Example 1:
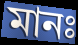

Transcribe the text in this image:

মানঃ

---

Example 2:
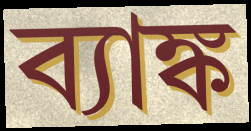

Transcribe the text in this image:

ব্যাঙ্ক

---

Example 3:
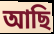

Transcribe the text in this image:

আছি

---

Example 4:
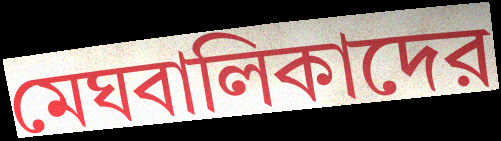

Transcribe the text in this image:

মেঘবালিকাদের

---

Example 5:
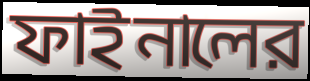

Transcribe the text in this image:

ফাইনালের